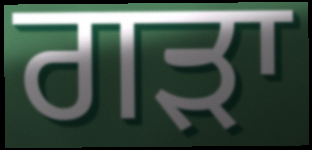
ਗੜਾ